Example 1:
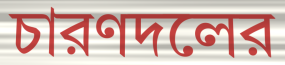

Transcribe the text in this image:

চারণদলের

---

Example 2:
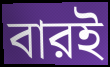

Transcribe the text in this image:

বারই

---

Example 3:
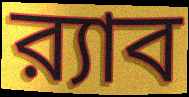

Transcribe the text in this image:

র‍্যাব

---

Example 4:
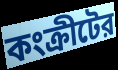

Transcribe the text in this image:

কংক্রীটের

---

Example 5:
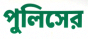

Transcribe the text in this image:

পুলিসের